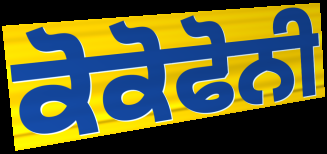
ਕੋਕੋਫੋਨੀ